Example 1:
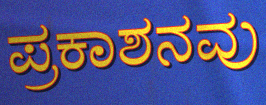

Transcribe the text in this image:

ಪ್ರಕಾಶನವು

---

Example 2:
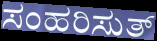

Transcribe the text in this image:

ಸಂಹರಿಸುತ್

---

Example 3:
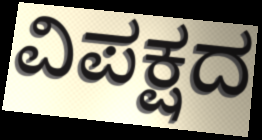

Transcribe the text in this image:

ವಿಪಕ್ಷದ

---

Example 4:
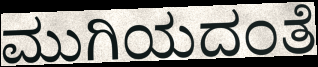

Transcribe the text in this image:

ಮುಗಿಯದಂತೆ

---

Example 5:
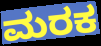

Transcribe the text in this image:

ಮರಕ